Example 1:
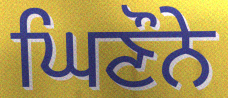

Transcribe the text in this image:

ਘਿਣੌਨੇ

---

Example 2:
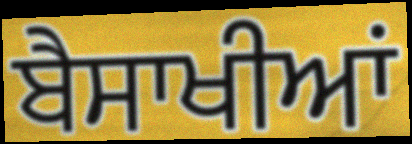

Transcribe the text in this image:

ਬੈਸਾਖੀਆਂ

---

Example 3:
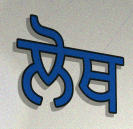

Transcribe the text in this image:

ਲੋਥ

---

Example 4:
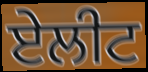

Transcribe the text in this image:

ਏਲੀਟ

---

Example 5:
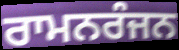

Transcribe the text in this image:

ਰਾਮਨਰੰਜਨ